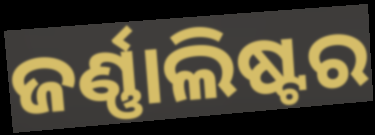
ଜର୍ଣ୍ଣାଲିଷ୍ଟର